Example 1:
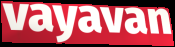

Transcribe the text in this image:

vayavan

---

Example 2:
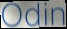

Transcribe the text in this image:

Odin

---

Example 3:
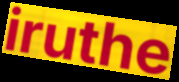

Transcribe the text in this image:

iruthe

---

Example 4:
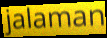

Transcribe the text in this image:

jalaman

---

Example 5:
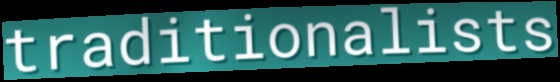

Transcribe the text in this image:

traditionalists